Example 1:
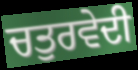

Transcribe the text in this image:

ਚਤੁਰਵੇਦੀ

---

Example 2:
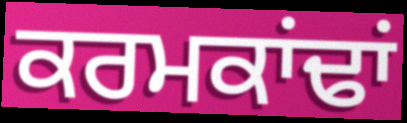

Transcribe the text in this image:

ਕਰਮਕਾਂਢਾਂ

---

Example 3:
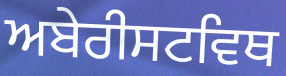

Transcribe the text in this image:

ਅਬੇਰੀਸਟਵਿਥ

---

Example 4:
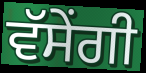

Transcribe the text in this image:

ਵੱਸੇਂਗੀ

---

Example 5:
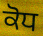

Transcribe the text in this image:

ਕੋਧ